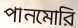
পানমোরি